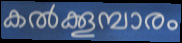
കൽക്കൂമ്പാരം